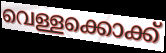
വെള്ളക്കൊക്ക്